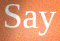
Say